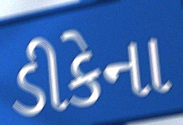
ડીકેના